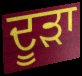
ਦੂੜਾ